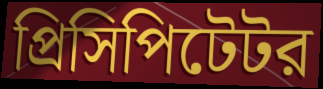
প্রিসিপিটেটর